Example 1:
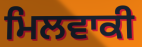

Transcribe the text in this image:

ਮਿਲਵਾਕੀ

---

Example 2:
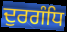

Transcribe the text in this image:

ਦੁਰਗੰਧਿ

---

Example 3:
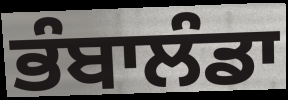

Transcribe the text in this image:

ਭੰਬਾਲੰਡਾ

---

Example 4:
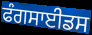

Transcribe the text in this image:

ਫੰਗਸਾਈਡਸ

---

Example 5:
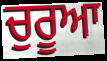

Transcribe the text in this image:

ਚੁਰੂਆ